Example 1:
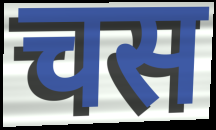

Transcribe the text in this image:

चस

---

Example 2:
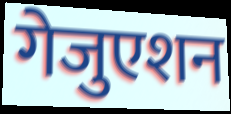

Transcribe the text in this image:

गेजुएशन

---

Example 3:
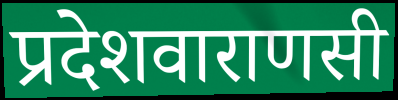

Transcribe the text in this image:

प्रदेशवाराणसी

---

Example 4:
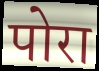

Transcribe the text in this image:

पोरा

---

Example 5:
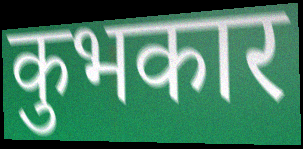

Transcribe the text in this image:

कुभकार